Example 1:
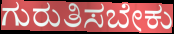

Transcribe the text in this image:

ಗುರುತಿಸಬೇಕು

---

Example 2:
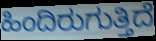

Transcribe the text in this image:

ಹಿಂದಿರುಗುತ್ತಿದೆ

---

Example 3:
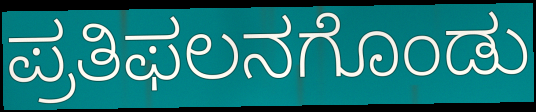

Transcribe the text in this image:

ಪ್ರತಿಫಲನಗೊಂಡು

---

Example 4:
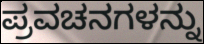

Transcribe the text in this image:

ಪ್ರವಚನಗಳನ್ನು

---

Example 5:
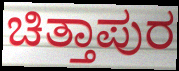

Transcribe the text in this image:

ಚಿತ್ತಾಪುರ